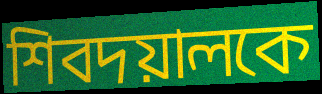
শিবদয়ালকে